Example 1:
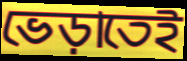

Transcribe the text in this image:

ভেড়াতেই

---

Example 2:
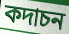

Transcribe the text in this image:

কদাচন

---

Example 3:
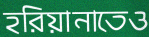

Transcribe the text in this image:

হরিয়ানাতেও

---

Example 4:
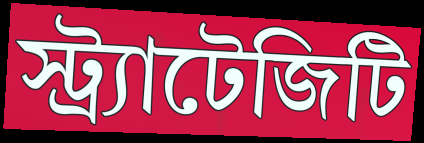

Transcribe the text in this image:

স্ট্র্যাটেজিটি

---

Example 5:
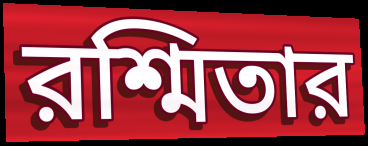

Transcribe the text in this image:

রশ্মিতার